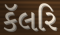
કૅલરિ